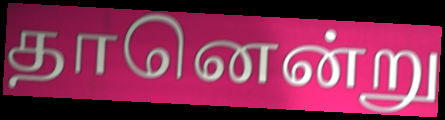
தானென்று